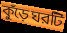
কুঁড়েঘরটি